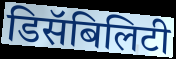
डिसॅबिलिटी